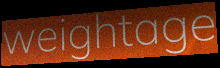
weightage